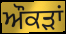
ਔਕਡ਼ਾਂ